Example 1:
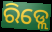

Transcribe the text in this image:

ରିଡ୍ଲେ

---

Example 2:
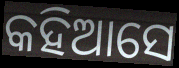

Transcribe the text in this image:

କହିଆସେ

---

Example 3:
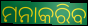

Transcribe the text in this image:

ମନାକରିବ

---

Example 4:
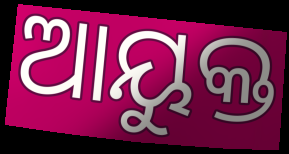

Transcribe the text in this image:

ଆୟୁକ୍ତ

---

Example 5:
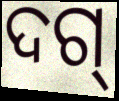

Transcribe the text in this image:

ଦଗ୍